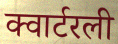
क्वार्टरली